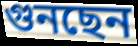
গুনছেন